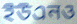
ইউএনও